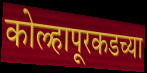
कोल्हापूरकडच्या